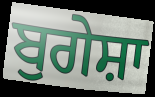
ਬੁਗੇਸ਼ਾ